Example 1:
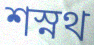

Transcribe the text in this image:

শস্নথ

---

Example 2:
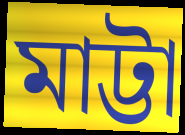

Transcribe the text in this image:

মাট্টা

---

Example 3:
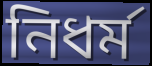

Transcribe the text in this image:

নিধর্ম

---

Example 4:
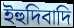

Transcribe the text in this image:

ইহুদিবাদি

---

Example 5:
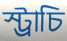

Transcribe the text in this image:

স্ট্রাচি